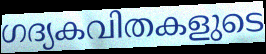
ഗദ്യകവിതകളുടെ